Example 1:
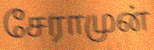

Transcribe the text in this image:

சேராமுன்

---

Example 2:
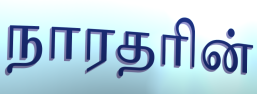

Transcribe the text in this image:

நாரதரின்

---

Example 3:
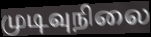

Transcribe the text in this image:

முடிவுநிலை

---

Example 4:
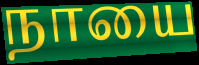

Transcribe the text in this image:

நாயை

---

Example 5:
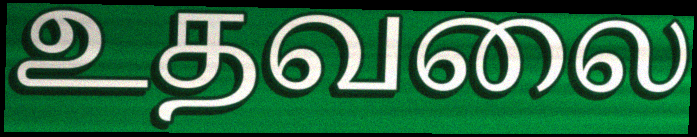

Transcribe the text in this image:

உதவலை